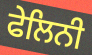
ਫੇਲਿਨੀ